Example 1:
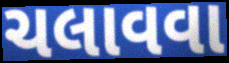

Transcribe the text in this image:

ચલાવવા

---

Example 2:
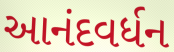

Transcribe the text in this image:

આનંદવર્ધન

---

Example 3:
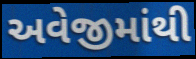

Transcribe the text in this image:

અવેજીમાંથી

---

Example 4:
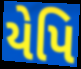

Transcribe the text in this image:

યેપિ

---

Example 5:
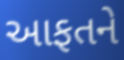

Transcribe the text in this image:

આફતને